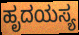
ಹೃದಯಸ್ಯ